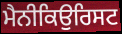
ਮੈਨੀਕਿਉਰਿਸਟ